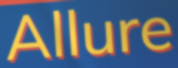
Allure